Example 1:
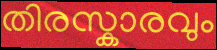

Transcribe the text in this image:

തിരസ്കാരവും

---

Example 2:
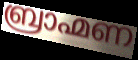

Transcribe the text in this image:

ബ്രാഹ്മണ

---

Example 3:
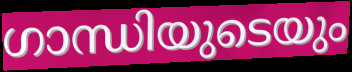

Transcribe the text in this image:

ഗാന്ധിയുടെയും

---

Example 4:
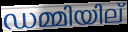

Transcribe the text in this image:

ഡമ്മിയില്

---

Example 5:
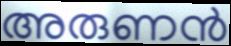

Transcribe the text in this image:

അരുണൻ